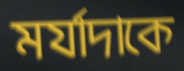
মর্যাদাকে